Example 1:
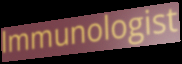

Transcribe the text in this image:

Immunologist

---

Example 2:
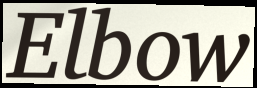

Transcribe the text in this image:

Elbow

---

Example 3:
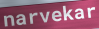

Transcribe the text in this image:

narvekar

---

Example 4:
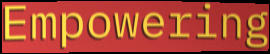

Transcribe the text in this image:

Empowering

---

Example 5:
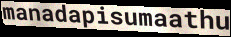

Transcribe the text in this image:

manadapisumaathu